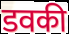
डवकी